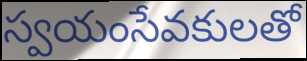
స్వయంసేవకులతో